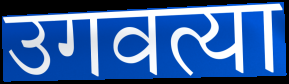
उगवत्या